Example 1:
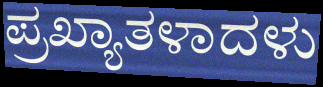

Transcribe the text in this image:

ಪ್ರಖ್ಯಾತಳಾದಳು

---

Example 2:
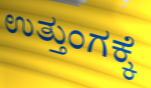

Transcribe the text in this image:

ಉತ್ತುಂಗಕ್ಕೆ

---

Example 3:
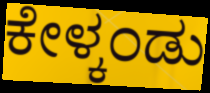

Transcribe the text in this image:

ಕೇಳ್ಕಂಡು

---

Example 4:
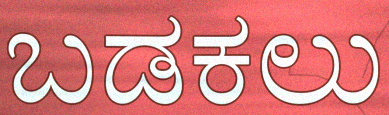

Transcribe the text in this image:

ಬಡಕಲು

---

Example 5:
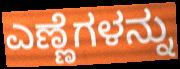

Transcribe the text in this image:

ಎಣ್ಣೆಗಳನ್ನು